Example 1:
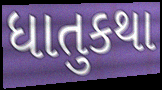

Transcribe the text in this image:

ધાતુકથા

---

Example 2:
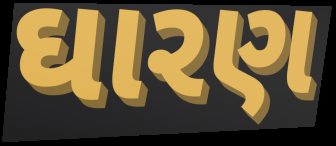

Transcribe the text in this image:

ઘારણ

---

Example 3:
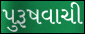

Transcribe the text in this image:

પુરૂષવાચી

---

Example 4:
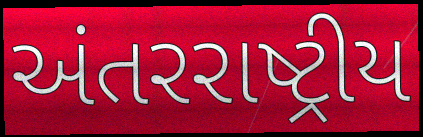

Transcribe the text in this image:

અંતરરાષ્ટ્રીય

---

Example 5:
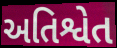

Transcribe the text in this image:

અતિશ્વેત